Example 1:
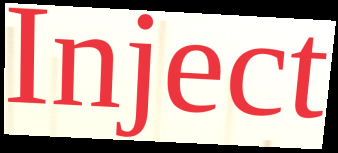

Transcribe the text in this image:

Inject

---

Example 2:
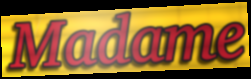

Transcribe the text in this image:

Madame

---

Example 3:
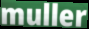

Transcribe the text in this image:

muller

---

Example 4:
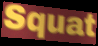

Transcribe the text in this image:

Squat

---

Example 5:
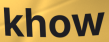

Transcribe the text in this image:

khow